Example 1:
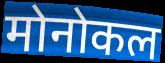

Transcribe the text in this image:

मोनोकल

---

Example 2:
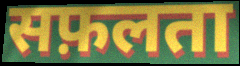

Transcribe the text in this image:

सफ़लता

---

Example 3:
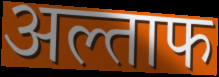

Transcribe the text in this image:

अल्ताफ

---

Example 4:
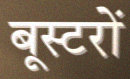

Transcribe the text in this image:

बूस्टरों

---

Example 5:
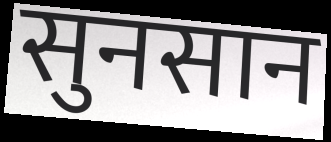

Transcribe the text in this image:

सुनसान